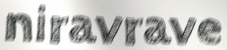
niravrave